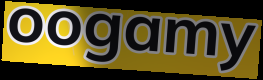
oogamy